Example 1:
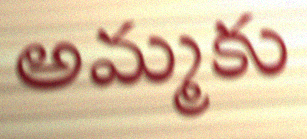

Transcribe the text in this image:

అమ్మకు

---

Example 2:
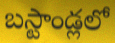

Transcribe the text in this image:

బస్టాండ్లలో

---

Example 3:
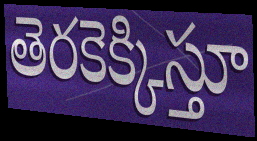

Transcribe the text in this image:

తెరకెక్కిస్తూ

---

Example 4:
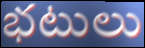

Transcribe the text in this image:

భటులు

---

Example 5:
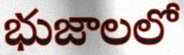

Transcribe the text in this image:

భుజాలలో